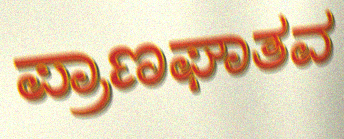
ಪ್ರಾಣಘಾತವ